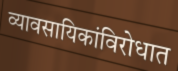
व्यावसायिकांविरोधात